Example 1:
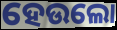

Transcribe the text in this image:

ହେଉଲୋ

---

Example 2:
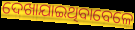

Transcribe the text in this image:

ଦେଖାଯାଇଥିବାବେଳେ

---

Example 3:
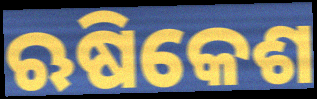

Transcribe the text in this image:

ଋଷିକେଶ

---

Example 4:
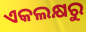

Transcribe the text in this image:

ଏକଲକ୍ଷରୁ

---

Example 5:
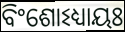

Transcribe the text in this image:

ବିଂଶୋଽଧ୍ୟାୟଃ